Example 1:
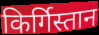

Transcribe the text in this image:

किर्गिस्तान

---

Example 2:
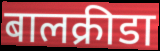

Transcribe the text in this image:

बालक्रीडा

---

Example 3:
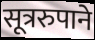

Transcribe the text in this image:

सूत्ररुपाने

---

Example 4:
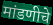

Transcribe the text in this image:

मांडणीचे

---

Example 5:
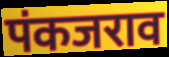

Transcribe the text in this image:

पंकजराव